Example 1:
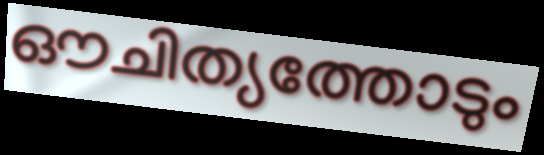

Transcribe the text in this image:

ഔചിത്യത്തോടും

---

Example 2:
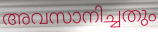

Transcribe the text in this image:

അവസാനിച്ചതും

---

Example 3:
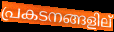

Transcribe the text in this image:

പ്രകടനങ്ങളില്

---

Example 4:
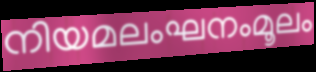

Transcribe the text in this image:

നിയമലംഘനംമൂലം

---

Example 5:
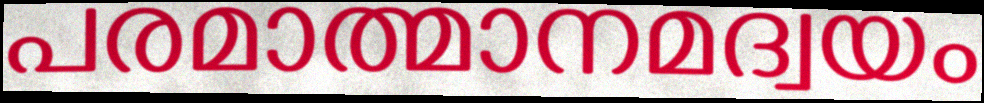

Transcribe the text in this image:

പരമാത്മാനമദ്വയം